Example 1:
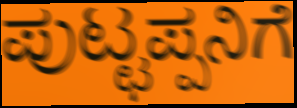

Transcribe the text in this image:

ಪುಟ್ಟಪ್ಪನಿಗೆ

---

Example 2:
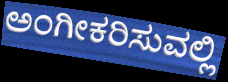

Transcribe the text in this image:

ಅಂಗೀಕರಿಸುವಲ್ಲಿ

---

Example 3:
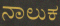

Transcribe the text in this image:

ನಾಲುಕ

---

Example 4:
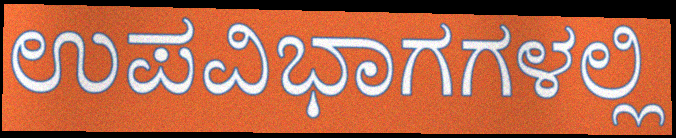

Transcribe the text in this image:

ಉಪವಿಭಾಗಗಳಲ್ಲಿ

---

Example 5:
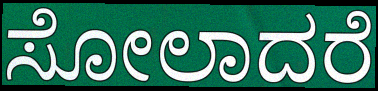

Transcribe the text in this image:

ಸೋಲಾದರೆ